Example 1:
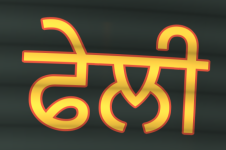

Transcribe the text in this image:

ਫੇਲੀ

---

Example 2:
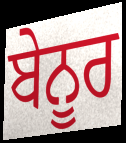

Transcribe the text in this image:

ਬੇਨੂਰ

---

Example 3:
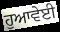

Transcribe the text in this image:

ਹੁਆਵੇਈ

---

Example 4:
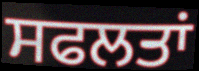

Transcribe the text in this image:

ਸਫਲਤਾਂ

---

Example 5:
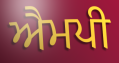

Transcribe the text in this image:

ਐਮਪੀ